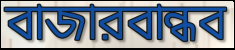
বাজারবান্ধব